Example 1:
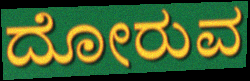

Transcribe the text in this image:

ದೋರುವ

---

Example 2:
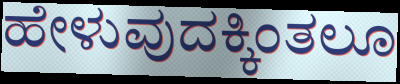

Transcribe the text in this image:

ಹೇಳುವುದಕ್ಕಿಂತಲೂ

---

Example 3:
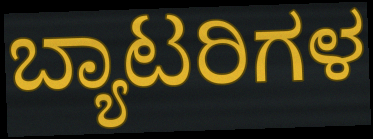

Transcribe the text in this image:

ಬ್ಯಾಟರಿಗಳ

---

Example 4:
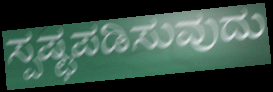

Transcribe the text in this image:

ಸ್ಪಷ್ಟಪಡಿಸುವುದು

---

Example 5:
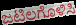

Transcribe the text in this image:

ಜಟಿಲಗೊಳಿಸಿ